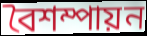
বৈশম্পায়ন